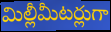
మిల్లీమీటర్లుగా